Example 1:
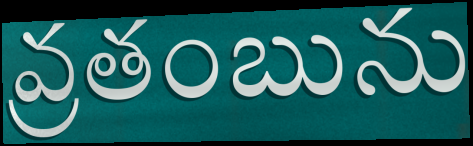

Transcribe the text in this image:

వ్రతంబును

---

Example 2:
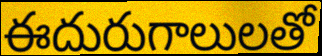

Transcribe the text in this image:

ఈదురుగాలులతో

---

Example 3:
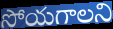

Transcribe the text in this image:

సోయగాలని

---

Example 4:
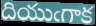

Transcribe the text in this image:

దియుఁగాక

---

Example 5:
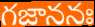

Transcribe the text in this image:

గజాననః